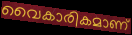
വൈകാരികമാണ്